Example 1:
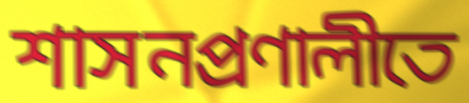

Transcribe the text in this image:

শাসনপ্রণালীতে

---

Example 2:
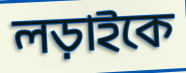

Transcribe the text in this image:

লড়াইকে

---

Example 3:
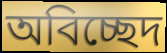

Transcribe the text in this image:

অবিচ্ছেদ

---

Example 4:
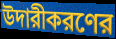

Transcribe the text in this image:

উদারীকরণের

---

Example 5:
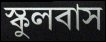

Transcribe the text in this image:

স্কুলবাস